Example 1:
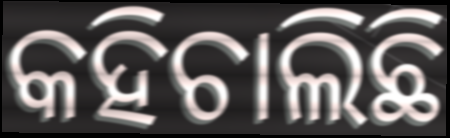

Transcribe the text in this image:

କହିଚାଲିଛି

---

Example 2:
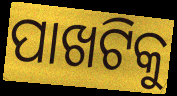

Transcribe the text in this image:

ପାଖଟିକୁ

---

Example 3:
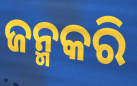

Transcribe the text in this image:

ଜନ୍ମକରି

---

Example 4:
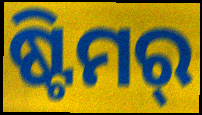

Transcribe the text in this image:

ଷ୍ଟିମର୍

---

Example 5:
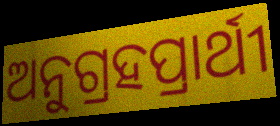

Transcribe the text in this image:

ଅନୁଗ୍ରହପ୍ରାର୍ଥୀ